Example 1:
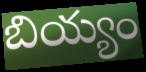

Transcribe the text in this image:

బియ్యం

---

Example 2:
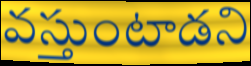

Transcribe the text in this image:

వస్తుంటాడని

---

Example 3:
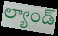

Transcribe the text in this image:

ల్యాండ్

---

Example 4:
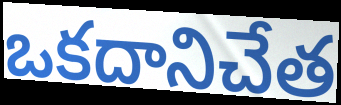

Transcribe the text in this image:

ఒకదానిచేత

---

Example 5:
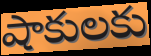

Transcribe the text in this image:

షాకులకు